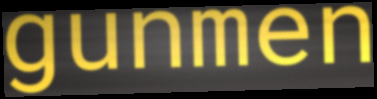
gunmen